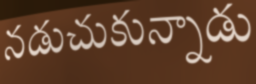
నడుచుకున్నాడు